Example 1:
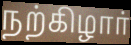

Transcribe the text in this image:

நற்கிழார்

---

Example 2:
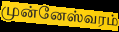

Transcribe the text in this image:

முன்னேஸ்வரம்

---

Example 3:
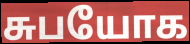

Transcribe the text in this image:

சுபயோக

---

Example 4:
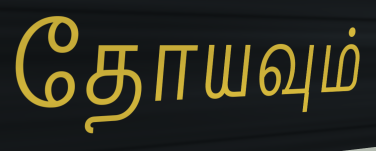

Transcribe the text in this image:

தோயவும்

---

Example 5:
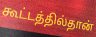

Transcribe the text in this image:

கூட்டத்தில்தான்